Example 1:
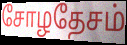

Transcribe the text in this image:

சோழதேசம்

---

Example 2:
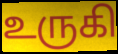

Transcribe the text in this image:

உருகி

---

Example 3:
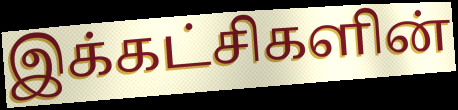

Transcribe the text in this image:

இக்கட்சிகளின்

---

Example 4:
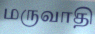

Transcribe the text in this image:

மருவாதி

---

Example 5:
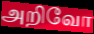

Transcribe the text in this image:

அறிவோ